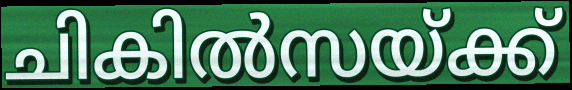
ചികിൽസയ്ക്ക്